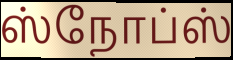
ஸ்நோப்ஸ்